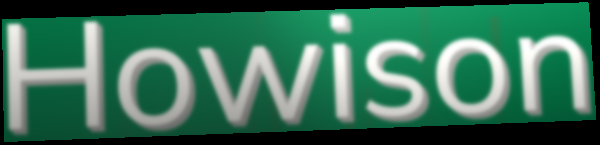
Howison